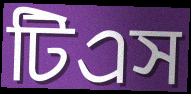
টিএস